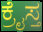
ಕ್ರೈಸ್ತ